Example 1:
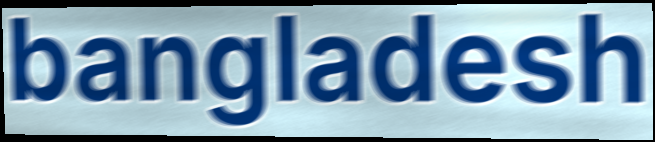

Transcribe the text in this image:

bangladesh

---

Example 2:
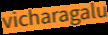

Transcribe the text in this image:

vicharagalu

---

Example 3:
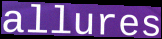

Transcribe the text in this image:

allures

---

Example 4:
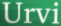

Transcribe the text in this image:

Urvi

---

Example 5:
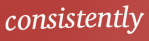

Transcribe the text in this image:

consistently